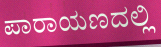
ಪಾರಾಯಣದಲ್ಲಿ